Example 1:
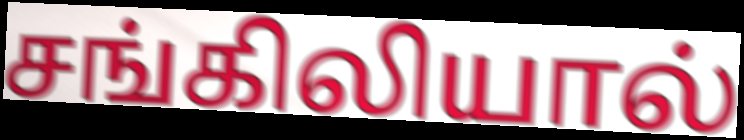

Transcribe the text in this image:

சங்கிலியால்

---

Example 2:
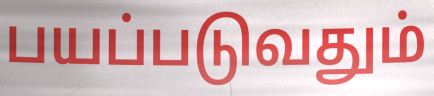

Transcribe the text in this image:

பயப்படுவதும்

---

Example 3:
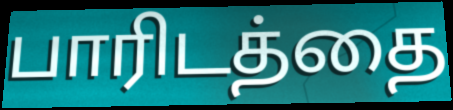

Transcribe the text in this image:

பாரிடத்தை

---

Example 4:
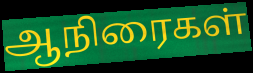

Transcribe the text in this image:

ஆநிரைகள்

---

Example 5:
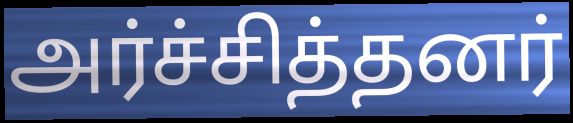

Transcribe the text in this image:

அர்ச்சித்தனர்